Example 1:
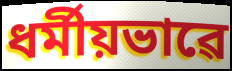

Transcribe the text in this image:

ধৰ্মীয়ভাৱে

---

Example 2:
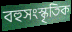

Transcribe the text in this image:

বহুসংস্কৃতিক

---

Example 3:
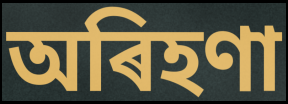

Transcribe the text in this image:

অৰিহণা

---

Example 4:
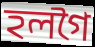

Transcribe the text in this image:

হলগৈ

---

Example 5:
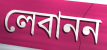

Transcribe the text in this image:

লেবানন